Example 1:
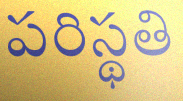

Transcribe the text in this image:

పరిస్థతి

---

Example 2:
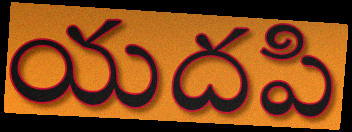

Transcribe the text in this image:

యదపి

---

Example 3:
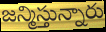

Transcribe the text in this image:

జన్మిస్తున్నారు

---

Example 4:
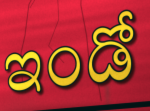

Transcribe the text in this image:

ఇండో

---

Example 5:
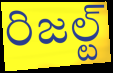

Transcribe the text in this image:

రిజల్ట్